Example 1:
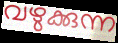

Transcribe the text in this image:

വഴുക്കുന്ന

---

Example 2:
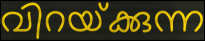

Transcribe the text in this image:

വിറയ്‌ക്കുന്ന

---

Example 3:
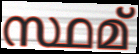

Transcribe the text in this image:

സ്ഥമ്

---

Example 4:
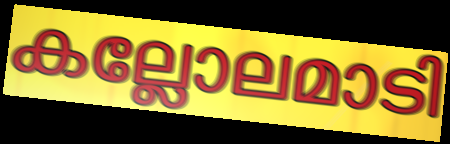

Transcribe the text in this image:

കല്ലോലമാടി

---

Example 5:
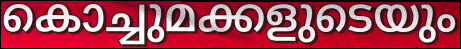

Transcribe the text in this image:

കൊച്ചുമക്കളുടെയും